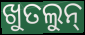
ଖୁତଲୁନ୍